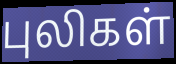
புலிகள்